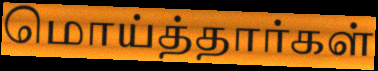
மொய்த்தார்கள்